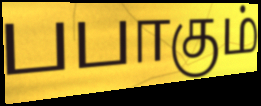
பபாகும்